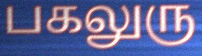
பகலுரு